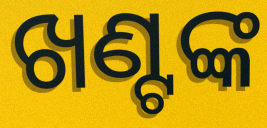
ଖଣ୍ଟଙ୍କ